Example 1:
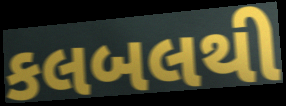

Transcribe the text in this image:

કલબલથી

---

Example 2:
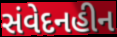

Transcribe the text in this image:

સંવેદનહીન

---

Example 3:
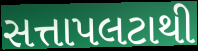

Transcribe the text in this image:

સત્તાપલટાથી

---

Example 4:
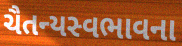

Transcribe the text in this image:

ચૈતન્યસ્વભાવના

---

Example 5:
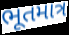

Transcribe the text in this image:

ભૂતમાત્ર